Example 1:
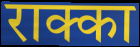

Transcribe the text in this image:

राक्का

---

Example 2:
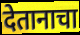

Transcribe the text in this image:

देतानाचा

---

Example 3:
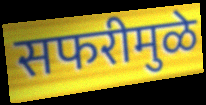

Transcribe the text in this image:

सफरीमुळे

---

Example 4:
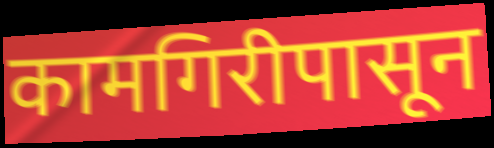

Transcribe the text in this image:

कामगिरीपासून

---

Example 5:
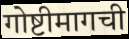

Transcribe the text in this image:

गोष्टीमागची